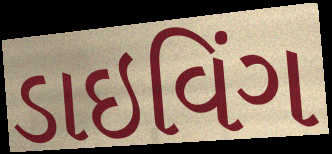
ડાઇવિંગ